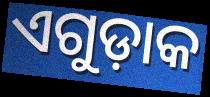
ଏଗୁଡ଼ାକ